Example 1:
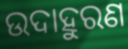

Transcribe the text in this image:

ଉଦାହୁରଣ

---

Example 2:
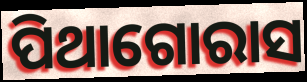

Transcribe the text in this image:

ପିଥାଗୋରାସ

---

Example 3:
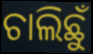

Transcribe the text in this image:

ଚାଲିଛୁଁ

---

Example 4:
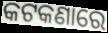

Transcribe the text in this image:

କଟକଣାରେ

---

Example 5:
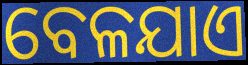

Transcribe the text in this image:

ବେଳଯାଏ